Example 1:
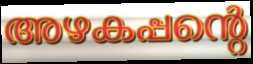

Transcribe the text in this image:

അഴകപ്പന്റെ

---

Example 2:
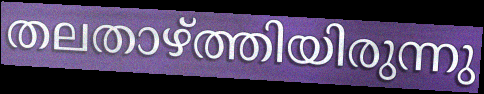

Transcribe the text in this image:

തലതാഴ്ത്തിയിരുന്നു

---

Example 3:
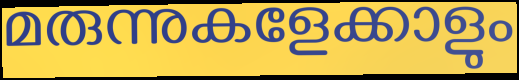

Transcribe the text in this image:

മരുന്നുകളേക്കാളും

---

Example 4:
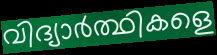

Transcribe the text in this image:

വിദ്യാർത്ഥികളെ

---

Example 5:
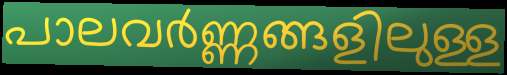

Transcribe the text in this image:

പാലവർണ്ണങ്ങളിലുള്ള